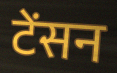
टेंसन